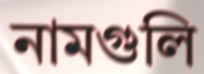
নামগুলি